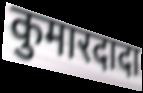
कुमारदादा